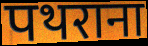
पथराना